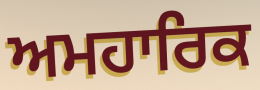
ਅਮਹਾਰਿਕ